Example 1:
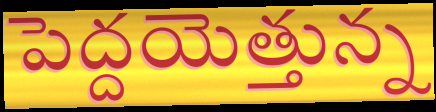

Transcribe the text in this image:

పెద్దయెత్తున్న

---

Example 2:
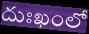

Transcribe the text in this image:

దుఃఖంలో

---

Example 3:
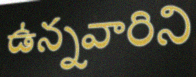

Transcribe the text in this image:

ఉన్నవారిని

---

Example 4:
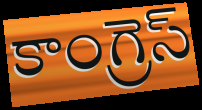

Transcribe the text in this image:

కాంగ్రెస్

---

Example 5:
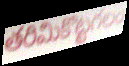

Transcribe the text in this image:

తరిమికొట్టగలం